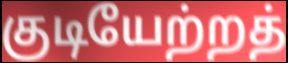
குடியேற்றத்